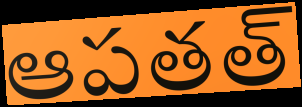
ఆపతత్